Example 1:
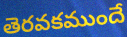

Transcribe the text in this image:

తెరవకముందే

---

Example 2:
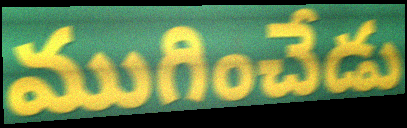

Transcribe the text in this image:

ముగించేడు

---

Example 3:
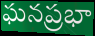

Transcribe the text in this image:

ఘనప్రభా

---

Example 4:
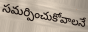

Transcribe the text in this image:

సమర్పించుకోవాలనే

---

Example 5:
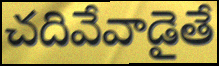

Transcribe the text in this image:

చదివేవాడైతే